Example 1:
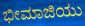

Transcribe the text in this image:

ಭೀಮಾಜಿಯು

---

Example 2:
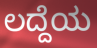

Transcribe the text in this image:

ಲದ್ದೆಯ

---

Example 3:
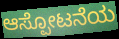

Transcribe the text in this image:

ಆಸ್ಪೋಟನೆಯ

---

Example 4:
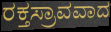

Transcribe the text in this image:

ರಕ್ತಸ್ರಾವವಾದ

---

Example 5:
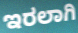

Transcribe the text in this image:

ಇರಲಾಗಿ